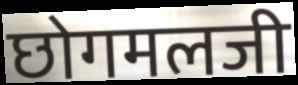
छोगमलजी